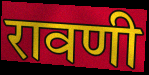
रावणी